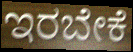
ಇರಬೇಕೆ